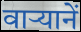
वार्‍यानें